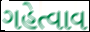
ગહેત્વાવ